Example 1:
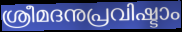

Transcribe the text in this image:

ശ്രീമദനുപ്രവിഷ്ടാം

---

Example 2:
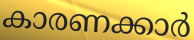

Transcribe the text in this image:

കാരണക്കാർ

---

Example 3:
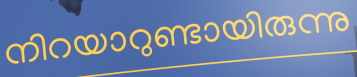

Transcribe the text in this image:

നിറയാറുണ്ടായിരുന്നു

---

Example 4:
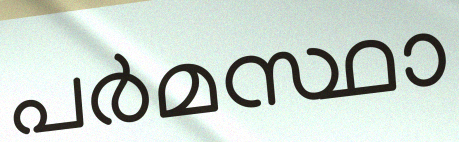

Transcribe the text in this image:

പർമസ്ഥാ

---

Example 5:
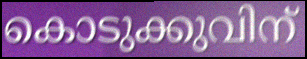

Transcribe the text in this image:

കൊടുക്കുവിന്